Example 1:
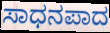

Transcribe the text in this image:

ಸಾಧನಪಾದ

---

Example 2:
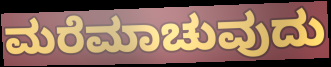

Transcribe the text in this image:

ಮರೆಮಾಚುವುದು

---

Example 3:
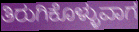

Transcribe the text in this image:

ತಿರುಗಿಕೊಳ್ಳುವಾಗ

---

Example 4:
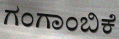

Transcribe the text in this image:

ಗಂಗಾಂಬಿಕೆ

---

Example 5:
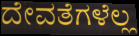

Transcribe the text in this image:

ದೇವತೆಗಳೆಲ್ಲ